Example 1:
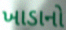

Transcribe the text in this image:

ખાડાનો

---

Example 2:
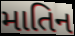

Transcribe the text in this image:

માતિન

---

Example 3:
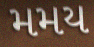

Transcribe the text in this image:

મમય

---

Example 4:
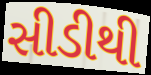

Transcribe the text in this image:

સીડીથી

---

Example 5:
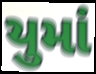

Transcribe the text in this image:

યુમાં